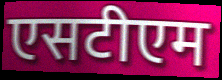
एसटीएम